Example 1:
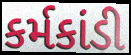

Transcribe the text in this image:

કર્મકાંડી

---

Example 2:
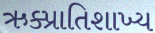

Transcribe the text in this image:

ઋક્પ્રાતિશાખ્ય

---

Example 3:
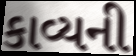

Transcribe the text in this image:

કાવ્યની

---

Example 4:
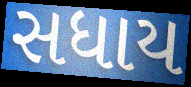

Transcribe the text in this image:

સધાય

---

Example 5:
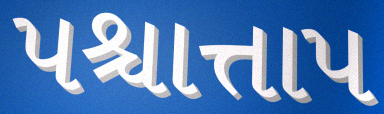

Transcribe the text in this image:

પશ્ચાત્તાપ